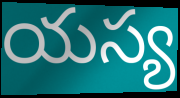
యస్య